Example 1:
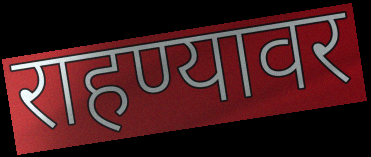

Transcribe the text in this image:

राहण्यावर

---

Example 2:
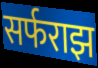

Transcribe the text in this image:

सर्फराझ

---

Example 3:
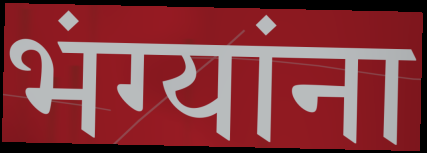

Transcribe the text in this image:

भंग्यांना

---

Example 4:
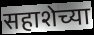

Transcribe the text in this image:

सहाशेच्या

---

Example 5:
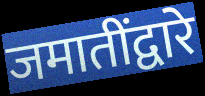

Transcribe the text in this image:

जमातींद्वारे